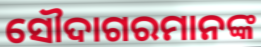
ସୌଦାଗରମାନଙ୍କ